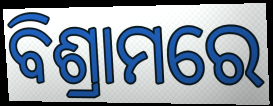
ବିଶ୍ରାମରେ